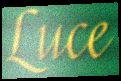
Luce